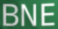
BNE